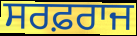
ਸਰਫ਼ਰਾਜ